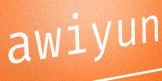
awiyun